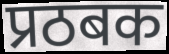
प्रठबक